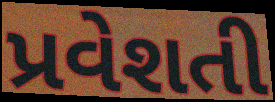
પ્રવેશતી